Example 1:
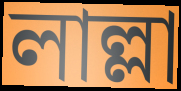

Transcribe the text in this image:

লাল্লা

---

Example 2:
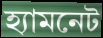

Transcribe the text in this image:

হ্যামনেট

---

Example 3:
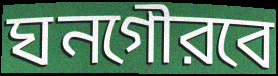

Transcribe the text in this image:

ঘনগৌরবে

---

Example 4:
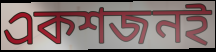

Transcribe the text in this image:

একশজনই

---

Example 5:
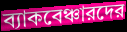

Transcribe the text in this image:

ব্যাকবেঞ্চারদের